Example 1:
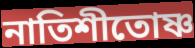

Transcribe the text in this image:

নাতিশীতোষ্ণ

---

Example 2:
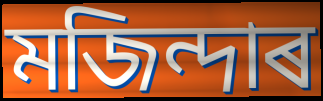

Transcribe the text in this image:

মজিন্দাৰ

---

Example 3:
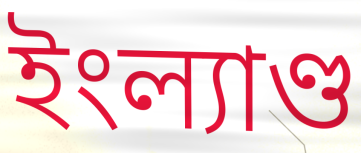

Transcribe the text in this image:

ইংল্যাণ্ড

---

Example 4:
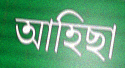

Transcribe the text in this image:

আহিছা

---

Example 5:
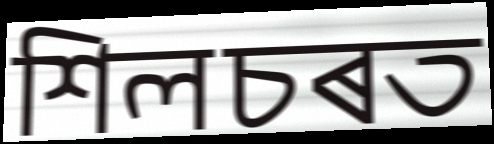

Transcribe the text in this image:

শিলচৰত